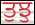
ਤੁਝੁ